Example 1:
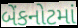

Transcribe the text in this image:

બેંકનોટમાં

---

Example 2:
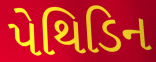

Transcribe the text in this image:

પેથિડિન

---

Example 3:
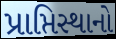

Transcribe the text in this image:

પ્રાપ્તિસ્થાનો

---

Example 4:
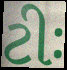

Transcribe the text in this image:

ટીઃ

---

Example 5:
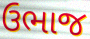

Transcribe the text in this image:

ઉભાજ